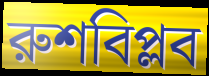
রুশবিপ্লব